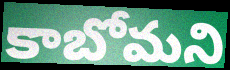
కాబోమని